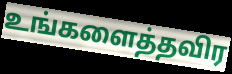
உங்களைத்தவிர